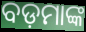
ବଡ଼ମାଙ୍କ